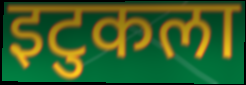
इटुकला